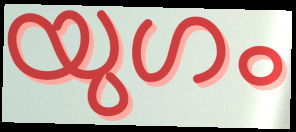
യുഗം